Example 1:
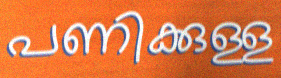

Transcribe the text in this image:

പണിക്കുള്ള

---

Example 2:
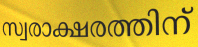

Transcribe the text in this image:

സ്വരാക്ഷരത്തിന്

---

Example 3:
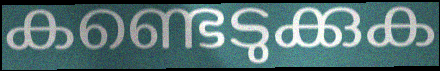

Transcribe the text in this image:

കണ്ടെടുക്കുക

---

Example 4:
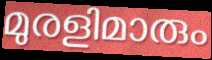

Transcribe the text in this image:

മുരളിമാരും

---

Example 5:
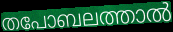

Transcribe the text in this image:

തപോബലത്താൽ